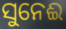
ସୁନେଈ